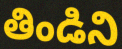
తిండిని